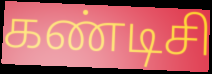
கண்டிசி